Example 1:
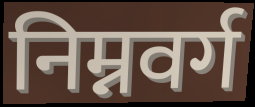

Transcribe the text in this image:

निम्नवर्ग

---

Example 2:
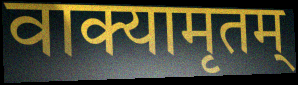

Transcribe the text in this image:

वाक्यामृतम्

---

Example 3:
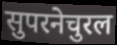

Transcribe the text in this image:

सुपरनेचुरल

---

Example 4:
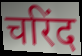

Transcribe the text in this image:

चरिंद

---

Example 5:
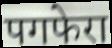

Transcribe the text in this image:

पगफेरा